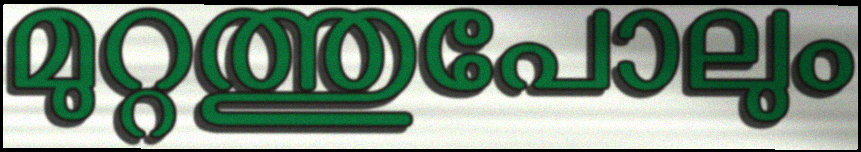
മുറ്റത്തുപോലും